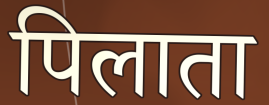
पिलाता